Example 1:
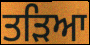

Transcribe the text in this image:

ਤੜਿਆ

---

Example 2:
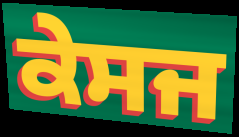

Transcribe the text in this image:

ਕੇਸਜ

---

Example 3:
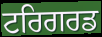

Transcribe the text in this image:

ਟਰਿਗਰਡ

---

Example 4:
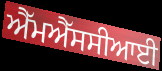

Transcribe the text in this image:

ਐੱਮਐੱਸਸੀਆਈ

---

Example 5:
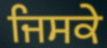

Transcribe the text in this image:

ਜਿਸਕੇ